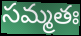
సమ్మతః